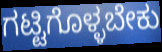
ಗಟ್ಟಿಗೊಳ್ಳಬೇಕು